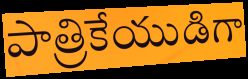
పాత్రికేయుడిగా